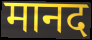
मानद